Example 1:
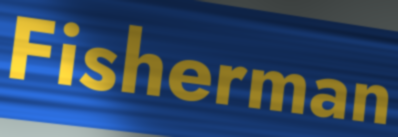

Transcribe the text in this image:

Fisherman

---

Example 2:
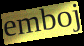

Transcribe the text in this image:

emboj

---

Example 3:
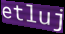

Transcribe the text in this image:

etluj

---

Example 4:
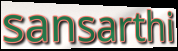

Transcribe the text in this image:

sansarthi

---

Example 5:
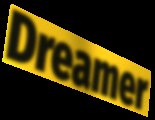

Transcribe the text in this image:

Dreamer